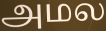
அமல